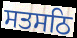
ਸਤਸਠਿ